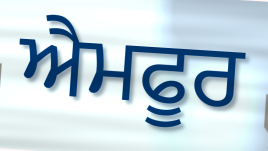
ਐਮਫੂਰ